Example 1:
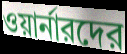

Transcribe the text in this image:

ওয়ার্নারদের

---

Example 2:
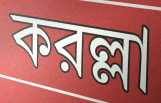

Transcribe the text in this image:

করল্লা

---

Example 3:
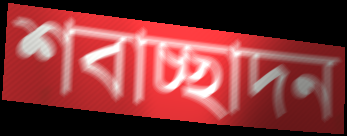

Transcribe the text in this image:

শবাচ্ছাদন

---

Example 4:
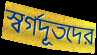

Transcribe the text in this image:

স্বর্গদূতদের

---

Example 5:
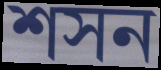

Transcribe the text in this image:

শসন